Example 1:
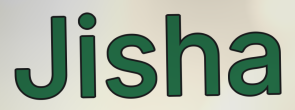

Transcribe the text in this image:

Jisha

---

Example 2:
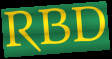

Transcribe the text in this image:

RBD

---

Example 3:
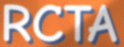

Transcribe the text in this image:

RCTA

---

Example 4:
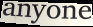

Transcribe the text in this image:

anyone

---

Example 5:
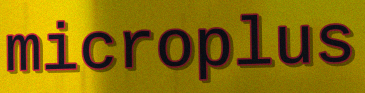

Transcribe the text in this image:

microplus